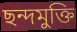
ছন্দমুক্তি